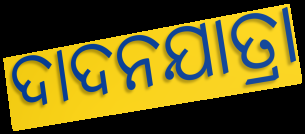
ଦାଦନଯାତ୍ରା